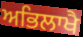
ਅਭਿਲਾਖੈ